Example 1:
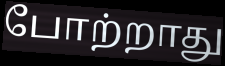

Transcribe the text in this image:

போற்றாது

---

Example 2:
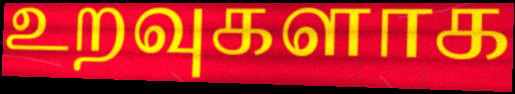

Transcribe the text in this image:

உறவுகளாக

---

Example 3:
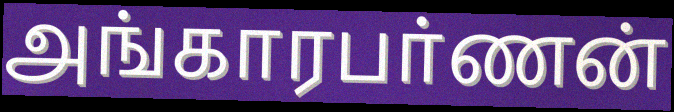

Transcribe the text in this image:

அங்காரபர்ணன்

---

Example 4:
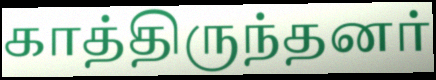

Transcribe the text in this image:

காத்திருந்தனர்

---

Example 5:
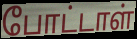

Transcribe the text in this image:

போட்டாள்